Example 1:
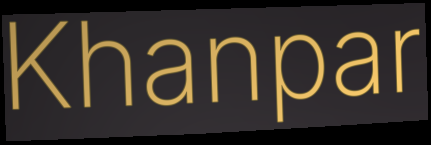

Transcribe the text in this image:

Khanpar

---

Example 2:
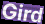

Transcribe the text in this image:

Gird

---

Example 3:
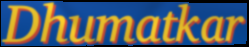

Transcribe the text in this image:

Dhumatkar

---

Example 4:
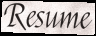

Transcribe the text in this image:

Resume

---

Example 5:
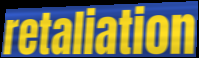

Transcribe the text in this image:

retaliation